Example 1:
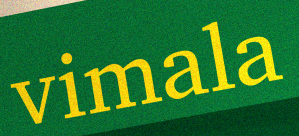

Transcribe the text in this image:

vimala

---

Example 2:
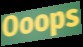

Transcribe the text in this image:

Ooops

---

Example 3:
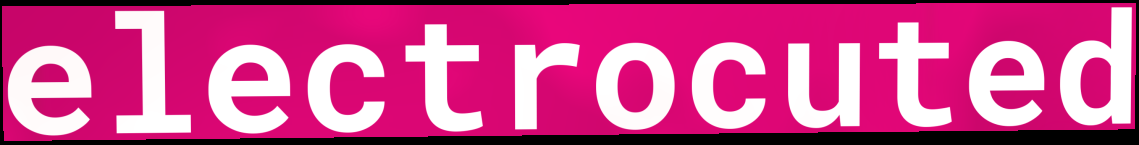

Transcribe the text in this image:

electrocuted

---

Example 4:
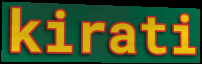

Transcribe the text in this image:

kirati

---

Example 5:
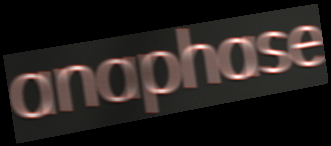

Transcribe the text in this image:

anaphase